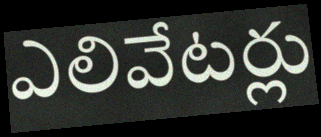
ఎలివేటర్లు